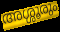
അശ്ശൂരും